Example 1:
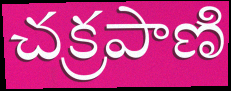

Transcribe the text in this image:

చక్రపాణి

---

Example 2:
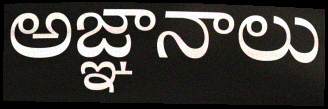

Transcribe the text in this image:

అజ్ఞానాలు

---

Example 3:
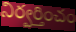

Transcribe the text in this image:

నిర్వర్తించం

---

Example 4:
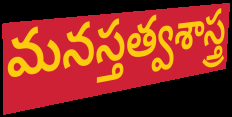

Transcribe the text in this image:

మనస్తత్వశాస్త్ర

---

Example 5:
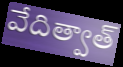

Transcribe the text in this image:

వేదిత్వాత్